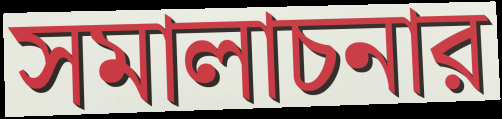
সমালাচনার